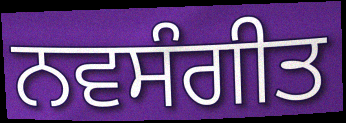
ਨਵਸੰਗੀਤ